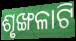
ଶୃଙ୍ଖଳାଟି